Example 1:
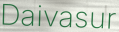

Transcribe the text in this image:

Daivasur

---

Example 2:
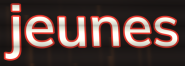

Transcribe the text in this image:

jeunes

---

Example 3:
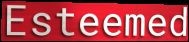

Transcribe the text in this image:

Esteemed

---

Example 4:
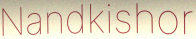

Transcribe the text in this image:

Nandkishor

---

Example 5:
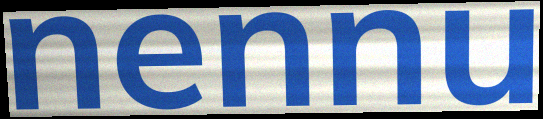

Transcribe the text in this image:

nennu